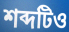
শব্দটিও